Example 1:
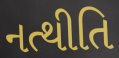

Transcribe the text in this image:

નત્થીતિ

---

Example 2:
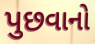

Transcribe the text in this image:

પુછવાનો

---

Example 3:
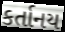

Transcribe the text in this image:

કર્તાનય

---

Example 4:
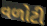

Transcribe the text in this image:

વળોટી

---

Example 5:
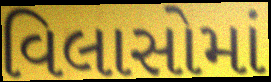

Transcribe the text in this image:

વિલાસોમાં